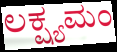
ಲಕ್ಷ್ಯಮಂ